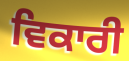
ਵਿਕਾਰੀ